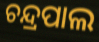
ଚନ୍ଦ୍ରପାଲ